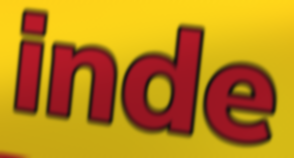
inde